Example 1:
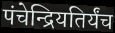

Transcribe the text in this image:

पंचेन्द्रियतिर्यंच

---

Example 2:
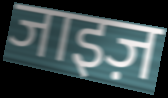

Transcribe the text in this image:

जाइज़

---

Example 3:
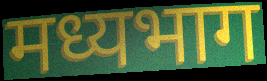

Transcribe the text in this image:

मध्यभाग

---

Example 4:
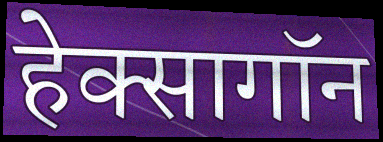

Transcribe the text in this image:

हेक्सागॉन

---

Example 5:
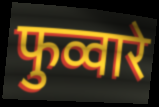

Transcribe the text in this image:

फुव्वारे